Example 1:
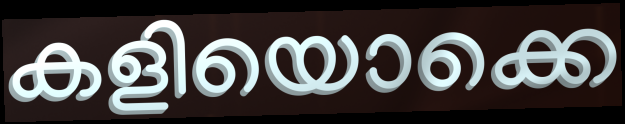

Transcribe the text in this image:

കളിയൊക്കെ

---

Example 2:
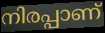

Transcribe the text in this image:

നിരപ്പാണ്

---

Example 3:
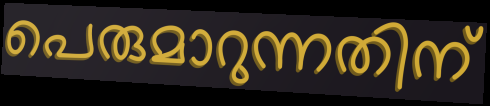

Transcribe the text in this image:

പെരുമാറുന്നതിന്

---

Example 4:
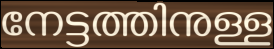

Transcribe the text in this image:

നേട്ടത്തിനുള്ള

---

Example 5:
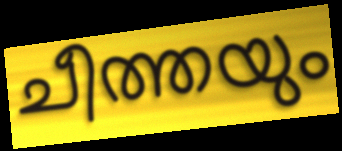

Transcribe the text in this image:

ചീത്തയും